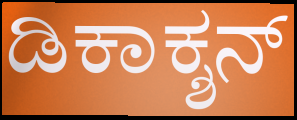
ಡಿಕಾಕ್ಶನ್